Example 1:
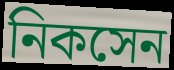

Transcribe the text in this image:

নিকসেন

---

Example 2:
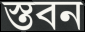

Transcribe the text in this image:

স্তবন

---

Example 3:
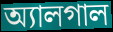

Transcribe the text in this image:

অ্যালগাল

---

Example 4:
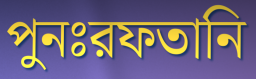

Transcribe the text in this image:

পুনঃরফতানি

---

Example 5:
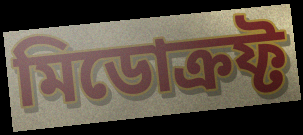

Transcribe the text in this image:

মিডোক্রফ্ট